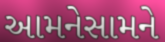
આમનેસામને